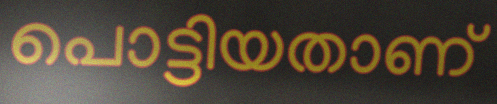
പൊട്ടിയതാണ്